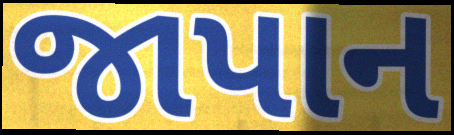
જાપાન